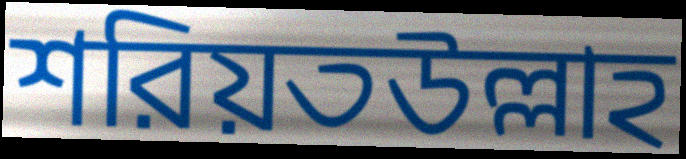
শরিয়তউল্লাহ